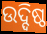
ଉଦ୍ଦିଷ୍ଠ